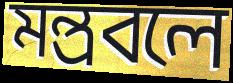
মন্ত্রবলে